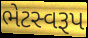
ભેટસ્વરૂપ